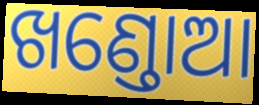
ଖଣ୍ଡୋଆ